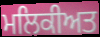
ਮਲਿਕੀਅਤ